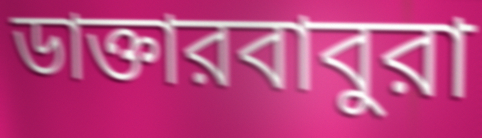
ডাক্তারবাবুরা